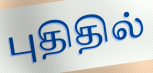
புதிதில்